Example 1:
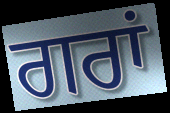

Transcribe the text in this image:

ਗਰਾਂ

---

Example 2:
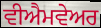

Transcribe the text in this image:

ਵੀਐਮਵੇਅਰ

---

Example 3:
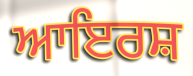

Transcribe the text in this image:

ਆਇਰਸ਼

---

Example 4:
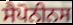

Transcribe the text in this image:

ਸੈਪੋਨੀਨਸ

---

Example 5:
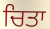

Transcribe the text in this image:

ਚਿਤਾ